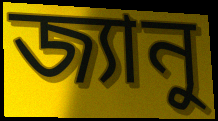
জ্যানু